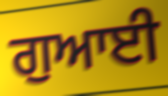
ਗੁਆਈ